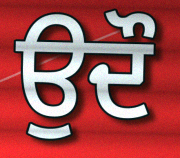
ਉਦੌ